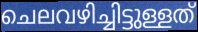
ചെലവഴിച്ചിട്ടുള്ളത്